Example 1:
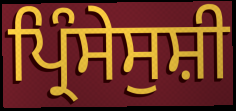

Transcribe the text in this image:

ਪ੍ਰਿੰਸੇਸੁਸ਼ੀ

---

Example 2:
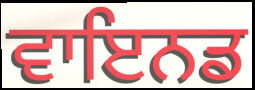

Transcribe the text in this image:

ਵਾਇਨਡ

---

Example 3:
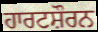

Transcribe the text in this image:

ਹਾਰਟਸ਼ੌਰਨ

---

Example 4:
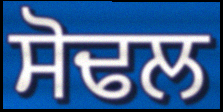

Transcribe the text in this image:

ਸੋਢਲ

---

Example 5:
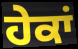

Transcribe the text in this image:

ਹੇਕਾਂ